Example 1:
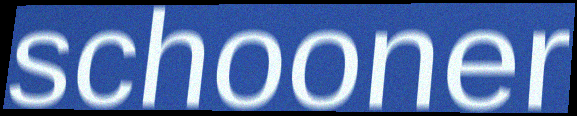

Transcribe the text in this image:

schooner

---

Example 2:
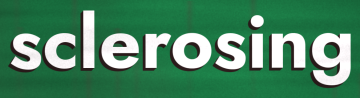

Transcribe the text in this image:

sclerosing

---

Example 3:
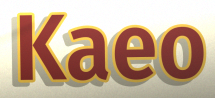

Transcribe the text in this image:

Kaeo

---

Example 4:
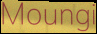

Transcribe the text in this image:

Moungi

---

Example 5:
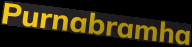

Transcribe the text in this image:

Purnabramha